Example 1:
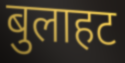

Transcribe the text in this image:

बुलाहट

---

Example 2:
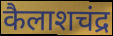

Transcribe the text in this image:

कैलाशचंद्र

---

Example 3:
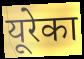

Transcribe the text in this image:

यूरेका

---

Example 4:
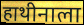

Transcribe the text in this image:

हाथीनाला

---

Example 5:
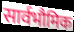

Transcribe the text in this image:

सार्वभौमिक